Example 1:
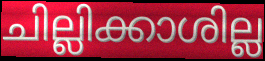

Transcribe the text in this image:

ചില്ലിക്കാശില്ല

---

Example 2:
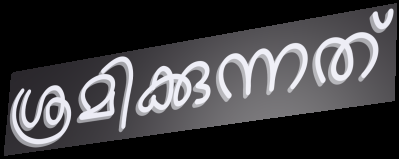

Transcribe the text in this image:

ശ്രമിക്കുന്നത്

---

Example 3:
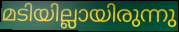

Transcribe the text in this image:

മടിയില്ലായിരുന്നു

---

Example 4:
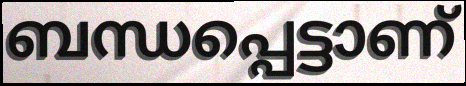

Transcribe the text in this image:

ബന്ധപ്പെട്ടാണ്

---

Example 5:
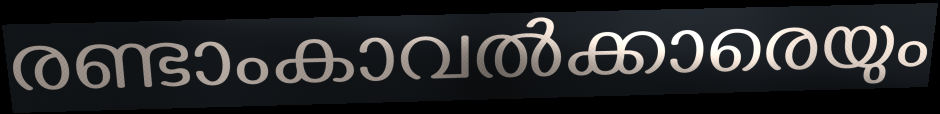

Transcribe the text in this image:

രണ്ടാംകാവൽക്കാരെയും